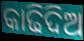
କାଢିଦିଅ